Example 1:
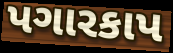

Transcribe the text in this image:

પગારકાપ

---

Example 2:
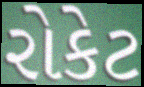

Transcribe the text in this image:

રોકેટ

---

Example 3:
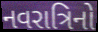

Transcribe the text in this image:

નવરાત્રિનો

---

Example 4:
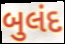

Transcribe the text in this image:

બુલંદ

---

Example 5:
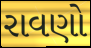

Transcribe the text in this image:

રાવણો